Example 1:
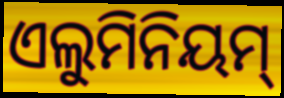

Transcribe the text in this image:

ଏଲୁମିନିୟମ୍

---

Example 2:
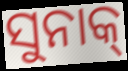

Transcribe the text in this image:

ସୁନାକ୍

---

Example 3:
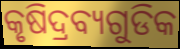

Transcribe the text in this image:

କୃଷିଦ୍ରବ୍ୟଗୁଡିକ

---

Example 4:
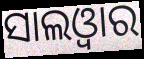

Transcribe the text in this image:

ସାଲଓ୍ଵାର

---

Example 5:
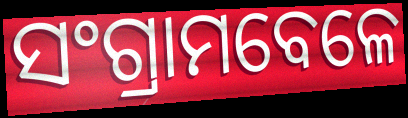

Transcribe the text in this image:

ସଂଗ୍ରାମବେଳେ